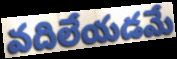
వదిలేయడమే